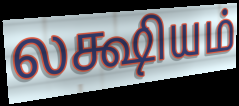
லக்ஷியம்